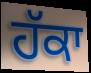
ਹੱਕਾ